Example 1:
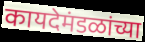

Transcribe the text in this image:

कायदेमंडळांच्या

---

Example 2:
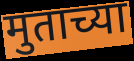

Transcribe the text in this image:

मुताच्या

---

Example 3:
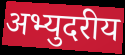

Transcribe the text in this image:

अभ्युदरीय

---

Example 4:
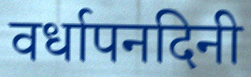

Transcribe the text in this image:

वर्धापनदिनी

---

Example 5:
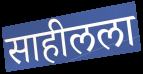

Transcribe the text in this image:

साहीलला